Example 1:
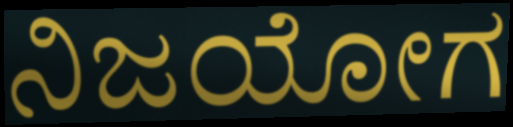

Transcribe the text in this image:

ನಿಜಯೋಗ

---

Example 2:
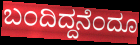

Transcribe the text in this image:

ಬಂದಿದ್ದನೆಂದೂ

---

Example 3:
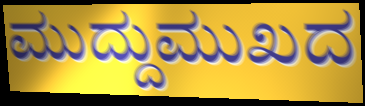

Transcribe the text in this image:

ಮುದ್ದುಮುಖದ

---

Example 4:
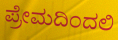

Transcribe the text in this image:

ಪ್ರೇಮದಿಂದಲಿ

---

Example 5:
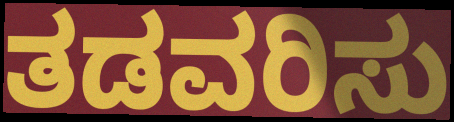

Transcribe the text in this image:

ತಡವರಿಸು